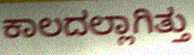
ಕಾಲದಲ್ಲಾಗಿತ್ತು